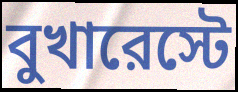
বুখারেস্টে